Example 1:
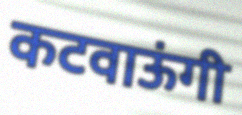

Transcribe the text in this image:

कटवाऊंगी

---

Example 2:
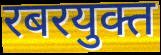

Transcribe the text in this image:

रबरयुक्त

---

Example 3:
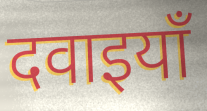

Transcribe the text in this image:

दवाइयाँ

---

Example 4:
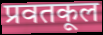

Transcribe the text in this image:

प्रवतकूल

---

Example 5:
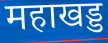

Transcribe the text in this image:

महाखड्ड